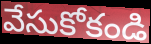
వేసుకోకండి